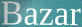
Bazar